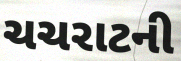
ચચરાટની